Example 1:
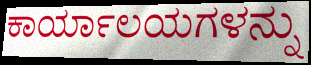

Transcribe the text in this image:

ಕಾರ್ಯಾಲಯಗಳನ್ನು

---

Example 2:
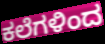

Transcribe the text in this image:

ಕಲೆಗಳಿಂದ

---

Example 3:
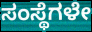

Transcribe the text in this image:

ಸಂಸ್ಥೆಗಳೇ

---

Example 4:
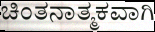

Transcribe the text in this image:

ಚಿಂತನಾತ್ಮಕವಾಗಿ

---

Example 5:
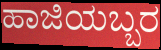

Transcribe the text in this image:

ಹಾಜಿಯಬ್ಬರ